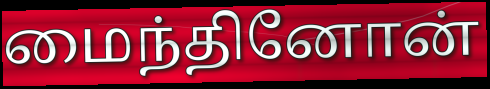
மைந்தினோன்